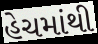
હેચમાંથી